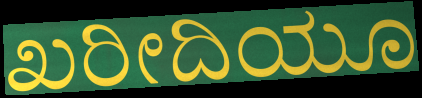
ಖರೀದಿಯೂ